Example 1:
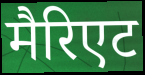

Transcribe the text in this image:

मैरिएट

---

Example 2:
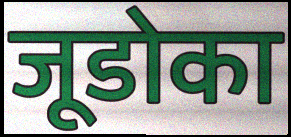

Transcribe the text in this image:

जूडोका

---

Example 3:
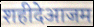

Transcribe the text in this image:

शहीदेआजम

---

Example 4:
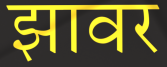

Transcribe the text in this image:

झावर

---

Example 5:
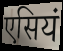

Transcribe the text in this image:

एसियं